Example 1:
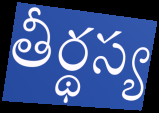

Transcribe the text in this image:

తీర్థస్య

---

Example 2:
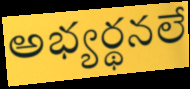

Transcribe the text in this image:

అభ్యర్థనలే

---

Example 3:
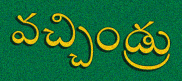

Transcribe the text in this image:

వచ్చిండ్రు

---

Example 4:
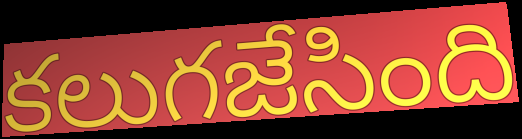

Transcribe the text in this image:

కలుగజేసింది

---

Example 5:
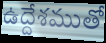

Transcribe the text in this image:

ఉద్దేశముతో